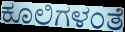
ಕೂಲಿಗಳಂತೆ